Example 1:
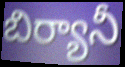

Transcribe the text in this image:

బిర్యానీ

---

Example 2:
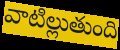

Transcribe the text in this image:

వాటిల్లుతుంది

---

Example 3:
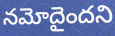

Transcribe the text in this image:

నమోదైందని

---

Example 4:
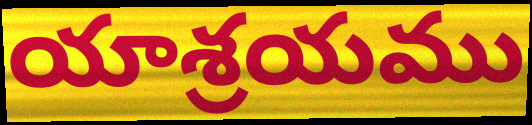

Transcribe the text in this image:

యాశ్రయము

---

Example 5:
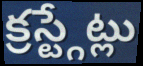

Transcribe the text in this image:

క్రస్ట్గేట్లు